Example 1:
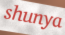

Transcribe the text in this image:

shunya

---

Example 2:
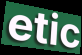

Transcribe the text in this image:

etic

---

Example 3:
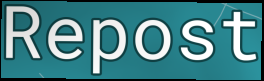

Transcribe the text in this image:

Repost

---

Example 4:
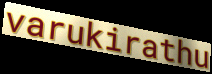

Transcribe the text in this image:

varukirathu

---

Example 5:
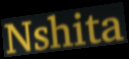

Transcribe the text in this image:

Nshita